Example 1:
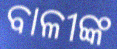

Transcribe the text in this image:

ବାଳୀଙ୍କ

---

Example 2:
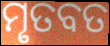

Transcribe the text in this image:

ମୃତବତ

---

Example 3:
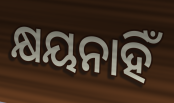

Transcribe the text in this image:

କ୍ଷୟନାହିଁ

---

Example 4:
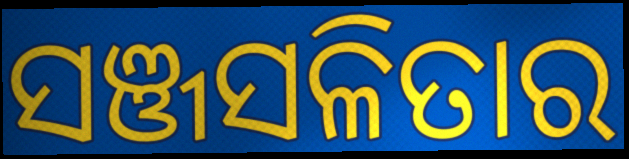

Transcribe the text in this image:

ସଞ୍ଜସଳିତାର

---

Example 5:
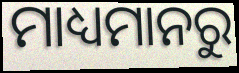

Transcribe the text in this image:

ମାଧ୍ୟମାନରୁ